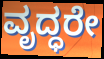
ವೃದ್ಧರೇ